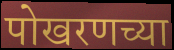
पोखरणच्या